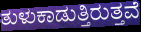
ತುಳುಕಾಡುತ್ತಿರುತ್ತವೆ